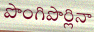
పొంగిపొర్లినా